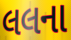
લલના